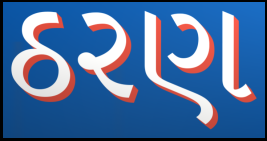
ઠરણ